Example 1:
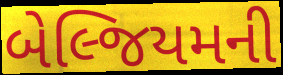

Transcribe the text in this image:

બેલ્જિયમની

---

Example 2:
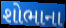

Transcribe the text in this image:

શોભાના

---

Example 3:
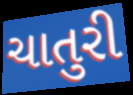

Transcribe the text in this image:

ચાતુરી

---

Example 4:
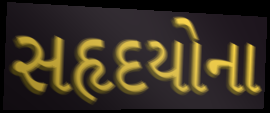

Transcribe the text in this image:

સહૃદયોના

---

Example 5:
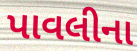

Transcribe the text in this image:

પાવલીના